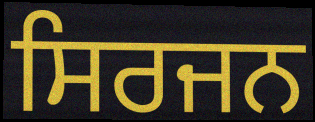
ਸਿਰਜਨ